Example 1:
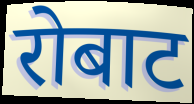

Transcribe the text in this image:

रोबाट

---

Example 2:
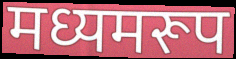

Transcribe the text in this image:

मध्यमरूप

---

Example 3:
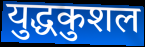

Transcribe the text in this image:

युद्धकुशल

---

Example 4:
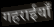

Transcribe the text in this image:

गहराईयाँ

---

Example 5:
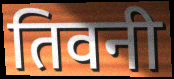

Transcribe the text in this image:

तिवनी